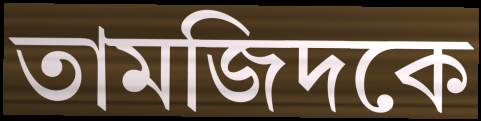
তামজিদকে